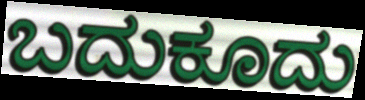
ಬದುಕೂದು